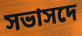
সভাসদে